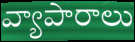
వ్యాపారాలు